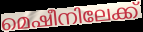
മെഷീനിലേക്ക്